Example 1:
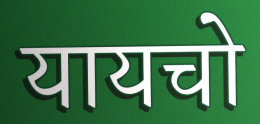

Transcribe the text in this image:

यायचो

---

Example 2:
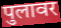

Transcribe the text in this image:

पुलावर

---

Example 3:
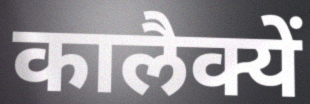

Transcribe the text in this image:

कालैक्यें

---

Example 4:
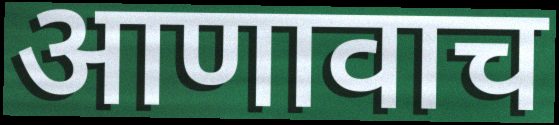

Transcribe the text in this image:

आणावाच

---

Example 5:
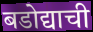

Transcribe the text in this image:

बडोद्याची